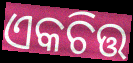
ଏକଚିତ୍ତ